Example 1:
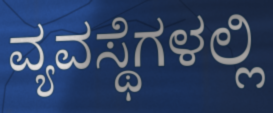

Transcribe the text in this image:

ವ್ಯವಸ್ಥೆಗಳಲ್ಲಿ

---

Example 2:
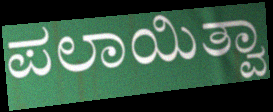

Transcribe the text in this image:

ಪಲಾಯಿತ್ವಾ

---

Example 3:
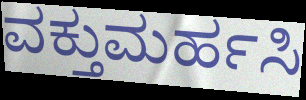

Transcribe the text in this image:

ವಕ್ತುಮರ್ಹಸಿ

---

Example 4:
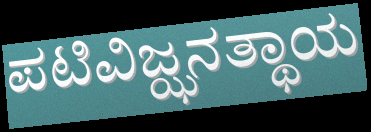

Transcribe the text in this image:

ಪಟಿವಿಜ್ಝನತ್ಥಾಯ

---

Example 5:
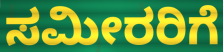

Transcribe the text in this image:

ಸಮೀರರಿಗೆ